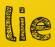
lie